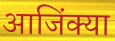
आजिंक्या